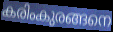
കരിംകുരങ്ങനെ